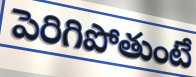
పెరిగిపోతుంటే